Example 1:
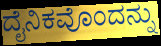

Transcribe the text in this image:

ದೈನಿಕವೊಂದನ್ನು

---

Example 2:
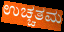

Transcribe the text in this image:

ಉಚ್ಚತಮ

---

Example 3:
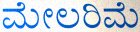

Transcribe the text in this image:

ಮೇಲರಿಮೆ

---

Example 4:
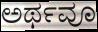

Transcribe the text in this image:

ಅರ್ಥವೂ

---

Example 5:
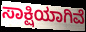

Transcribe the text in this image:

ಸಾಕ್ಷಿಯಾಗಿವೆ